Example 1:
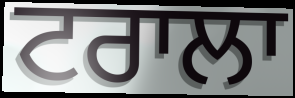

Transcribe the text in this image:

ਟਰਾਲਾ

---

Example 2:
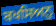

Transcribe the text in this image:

ਬਖਸਿਅਨੁ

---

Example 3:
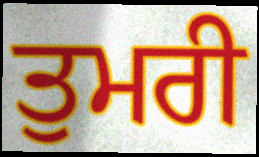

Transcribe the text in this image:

ਤੁਮਰੀ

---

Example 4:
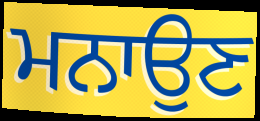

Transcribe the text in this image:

ਮਨਾਉਣ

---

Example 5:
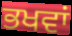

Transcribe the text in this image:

ਭਖਵਾਂ